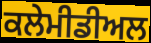
ਕਲੇਮੀਡੀਅਲ